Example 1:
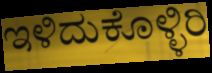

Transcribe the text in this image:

ಇಳಿದುಕೊಳ್ಳಿರಿ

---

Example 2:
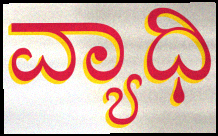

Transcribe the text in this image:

ವ್ಯಾಧಿ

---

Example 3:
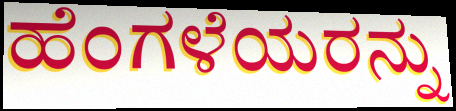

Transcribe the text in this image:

ಹೆಂಗಳೆಯರನ್ನು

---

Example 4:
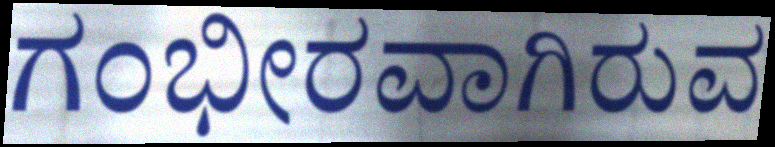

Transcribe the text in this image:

ಗಂಭೀರವಾಗಿರುವ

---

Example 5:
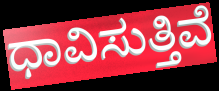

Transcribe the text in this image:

ಧಾವಿಸುತ್ತಿವೆ